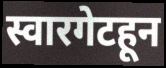
स्वारगेटहून